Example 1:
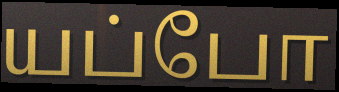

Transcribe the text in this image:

யப்போ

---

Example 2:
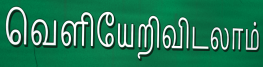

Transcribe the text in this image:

வெளியேறிவிடலாம்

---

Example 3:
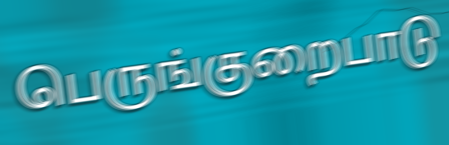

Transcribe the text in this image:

பெருங்குறைபாடு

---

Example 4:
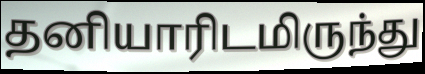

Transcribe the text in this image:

தனியாரிடமிருந்து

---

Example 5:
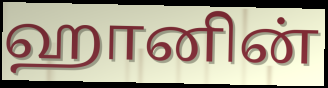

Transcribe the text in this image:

ஹானின்